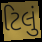
ટિલું